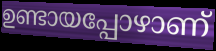
ഉണ്ടായപ്പോഴാണ്